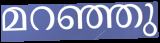
മറഞ്ഞു